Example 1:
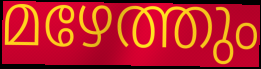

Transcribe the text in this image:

മഴേത്തും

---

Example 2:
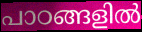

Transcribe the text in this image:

പാഠങ്ങളിൽ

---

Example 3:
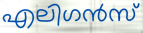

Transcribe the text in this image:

എലിഗൻസ്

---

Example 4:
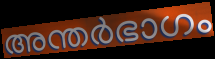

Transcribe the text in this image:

അന്തർഭാഗം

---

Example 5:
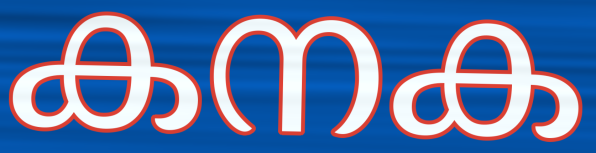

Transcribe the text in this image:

കനക